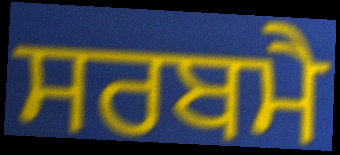
ਸਰਬਮੈ